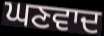
ਘਣਵਾਦ